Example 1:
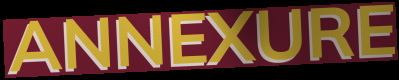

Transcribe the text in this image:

ANNEXURE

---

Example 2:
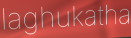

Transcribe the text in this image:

laghukatha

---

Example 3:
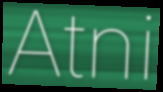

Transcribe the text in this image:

Atni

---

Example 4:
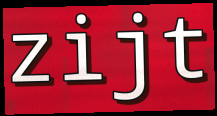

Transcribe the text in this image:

zijt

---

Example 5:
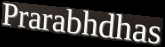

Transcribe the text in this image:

Prarabhdhas